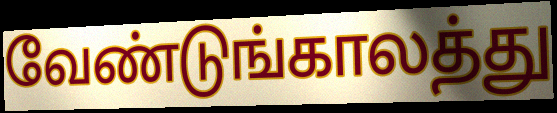
வேண்டுங்காலத்து